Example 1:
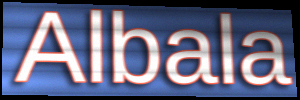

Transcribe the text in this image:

Albala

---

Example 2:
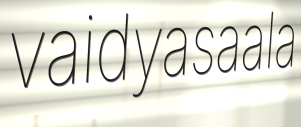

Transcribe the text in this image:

vaidyasaala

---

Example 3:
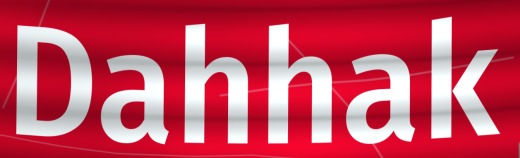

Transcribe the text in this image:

Dahhak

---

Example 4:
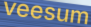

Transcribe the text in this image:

veesum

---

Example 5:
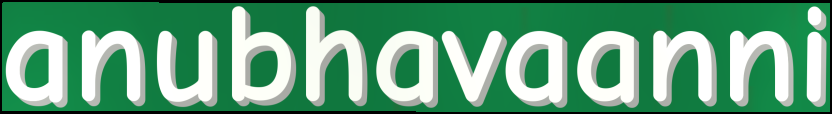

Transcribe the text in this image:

anubhavaanni